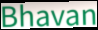
Bhavan